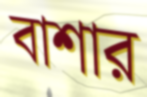
বাশার